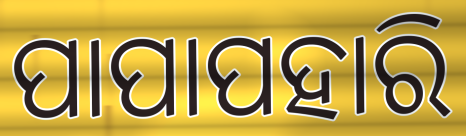
ପାପାପହାରି